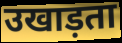
उखाड़ता